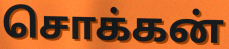
சொக்கன்